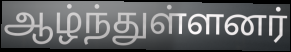
ஆழ்ந்துள்ளனர்